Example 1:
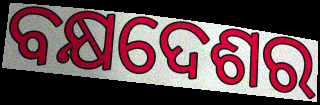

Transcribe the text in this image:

ବକ୍ଷଦେଶର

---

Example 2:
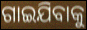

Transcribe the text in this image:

ଗାଇଯିବାକୁ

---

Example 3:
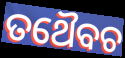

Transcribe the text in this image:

ତଥୈବଚ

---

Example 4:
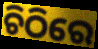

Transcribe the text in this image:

ଚିଠିରେ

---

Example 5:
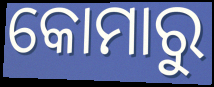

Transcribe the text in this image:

କୋମାରୁ